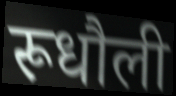
रूधौली